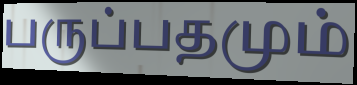
பருப்பதமும்